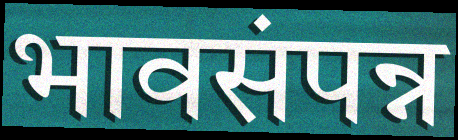
भावसंपन्न